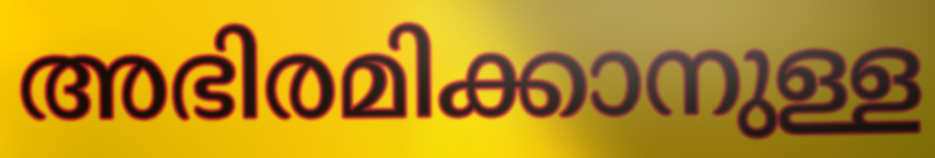
അഭിരമിക്കാനുള്ള